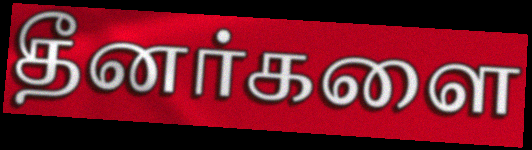
தீனர்களை